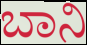
ಬಾನಿ